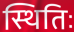
स्थितिः